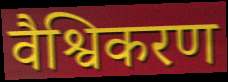
वैश्विकरण